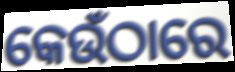
କେଉଁଠାରେ